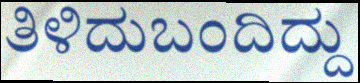
ತಿಳಿದುಬಂದಿದ್ದು